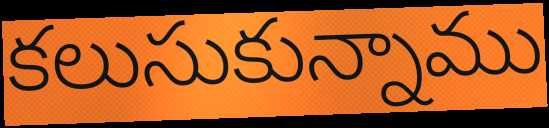
కలుసుకున్నాము